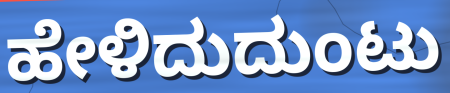
ಹೇಳಿದುದುಂಟು